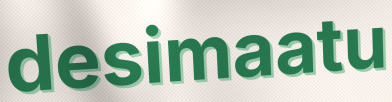
desimaatu